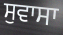
ਸੁਵਾਸਾ